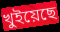
খুইয়েছে